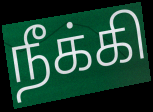
நீக்கி